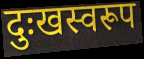
दुःखस्वरूप